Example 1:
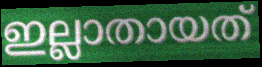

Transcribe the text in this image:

ഇല്ലാതായത്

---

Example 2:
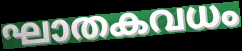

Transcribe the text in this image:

ഘാതകവധം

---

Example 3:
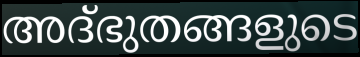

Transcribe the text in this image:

അദ്ഭുതങ്ങളുടെ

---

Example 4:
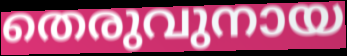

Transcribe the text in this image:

തെരുവുനായ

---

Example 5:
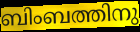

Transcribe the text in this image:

ബിംബത്തിനു